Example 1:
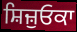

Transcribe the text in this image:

ਸ਼ਿਜ਼ੁਓਕਾ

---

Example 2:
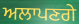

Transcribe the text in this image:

ਅਲਾਪਣਗੇ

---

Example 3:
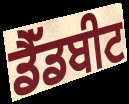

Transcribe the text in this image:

ਡੈੱਡਬੀਟ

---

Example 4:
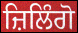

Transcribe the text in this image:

ਜ਼ਿਲਿੰਗੋ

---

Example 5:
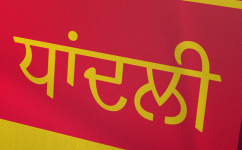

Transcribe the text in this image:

ਧਾਂਦਲੀ